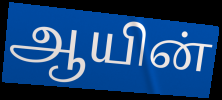
ஆயின்